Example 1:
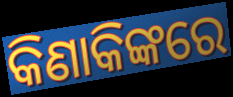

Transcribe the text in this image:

କିଣାକିଙ୍କରେ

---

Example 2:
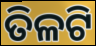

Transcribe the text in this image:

ତିଳଟି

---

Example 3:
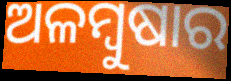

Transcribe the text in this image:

ଅଳମ୍ବୁଷାର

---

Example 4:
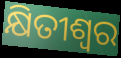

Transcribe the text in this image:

କ୍ଷିତୀଶ୍ୱର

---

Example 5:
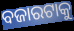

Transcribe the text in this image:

ବଜାରଟାକୁ